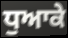
ਧੁਆਕੇ